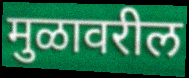
मुळावरील